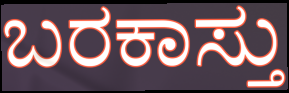
ಬರಕಾಸ್ತು